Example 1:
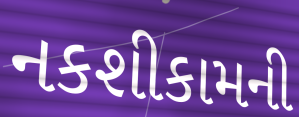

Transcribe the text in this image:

નકશીકામની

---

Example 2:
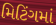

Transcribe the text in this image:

મિટિંગમાં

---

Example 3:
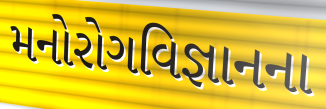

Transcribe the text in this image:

મનોરોગવિજ્ઞાનના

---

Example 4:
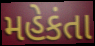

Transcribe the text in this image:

મહેકંતા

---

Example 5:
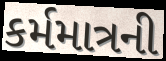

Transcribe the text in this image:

કર્મમાત્રની